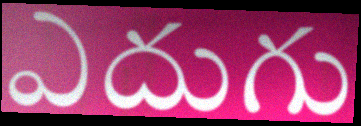
ఎదుగు